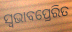
ସ୍ୱଭାବପ୍ରେରିତ